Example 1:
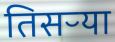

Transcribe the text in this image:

तिसऱ्या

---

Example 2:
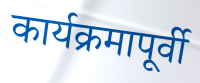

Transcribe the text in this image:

कार्यक्रमापूर्वी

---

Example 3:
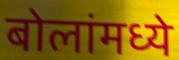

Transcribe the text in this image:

बोलांमध्ये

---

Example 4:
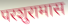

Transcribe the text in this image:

परशुरामास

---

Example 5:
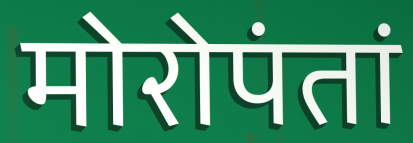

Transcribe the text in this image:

मोरोपंतां